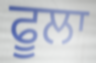
ਫੂਲਾ